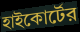
হাইকোর্টের